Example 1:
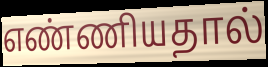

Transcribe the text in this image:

எண்ணியதால்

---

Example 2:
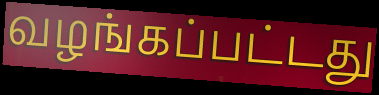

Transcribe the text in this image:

வழங்கப்பட்டது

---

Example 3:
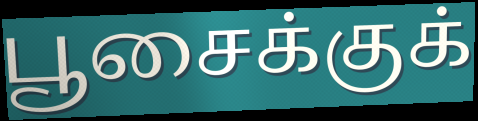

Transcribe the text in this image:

பூசைக்குக்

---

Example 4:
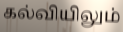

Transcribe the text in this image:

கல்வியிலும்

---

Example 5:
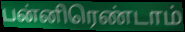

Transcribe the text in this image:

பன்னிரெண்டாம்